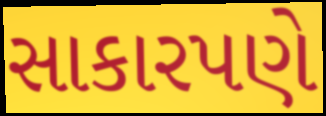
સાકારપણે